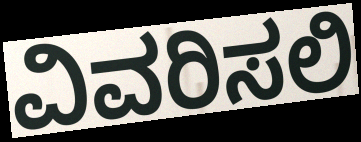
ವಿವರಿಸಲಿ